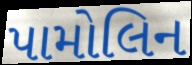
પામોલિન